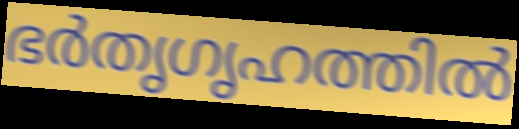
ഭർതൃഗൃഹത്തിൽ